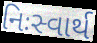
નિઃસ્વાર્થ